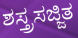
ಶಸ್ತ್ರಸಜ್ಜಿತ